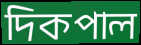
দিকপাল